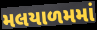
મલયાળમમાં